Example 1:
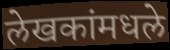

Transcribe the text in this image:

लेखकांमधले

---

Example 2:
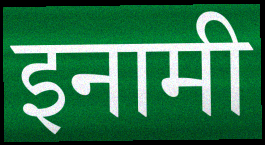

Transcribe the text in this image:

इनामी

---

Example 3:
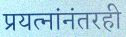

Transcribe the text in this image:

प्रयत्नांनंतरही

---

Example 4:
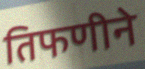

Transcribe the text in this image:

तिफणीने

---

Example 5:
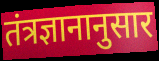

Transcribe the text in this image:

तंत्रज्ञानानुसार